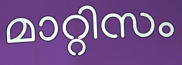
മാറ്റിസം